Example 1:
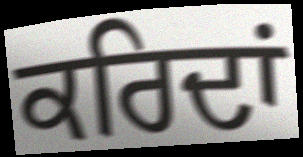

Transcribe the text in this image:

ਕਰਿਦਾਂ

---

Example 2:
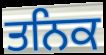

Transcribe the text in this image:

ਤਨਿਕ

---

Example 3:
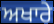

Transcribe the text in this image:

ਅਖਾਰੇ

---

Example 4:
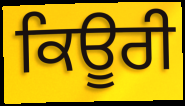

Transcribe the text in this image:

ਕਿਊਰੀ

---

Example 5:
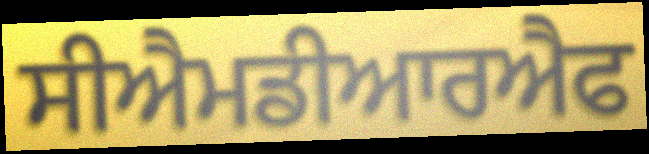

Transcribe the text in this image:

ਸੀਐਮਡੀਆਰਐਫ